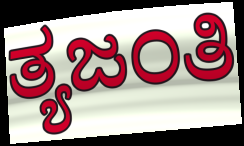
ತ್ಯಜಂತಿ